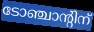
ടോഞ്ചാന്റിന്